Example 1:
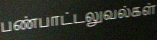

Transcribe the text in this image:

பண்பாட்டலுவல்கள்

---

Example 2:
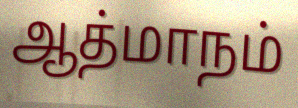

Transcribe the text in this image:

ஆத்மாநம்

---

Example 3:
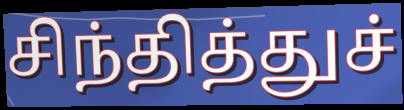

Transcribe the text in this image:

சிந்தித்துச்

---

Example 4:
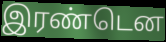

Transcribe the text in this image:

இரண்டென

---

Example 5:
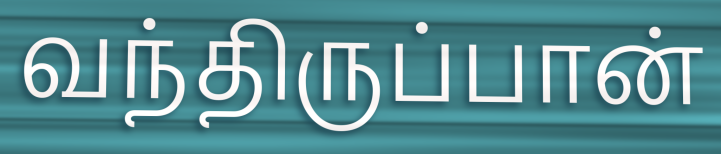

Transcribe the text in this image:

வந்திருப்பான்